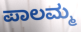
ಪಾಲಮ್ಮ